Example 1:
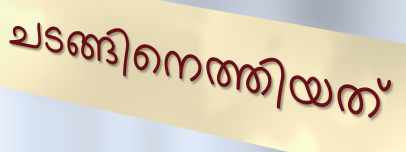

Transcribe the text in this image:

ചടങ്ങിനെത്തിയത്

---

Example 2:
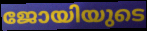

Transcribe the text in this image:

ജോയിയുടെ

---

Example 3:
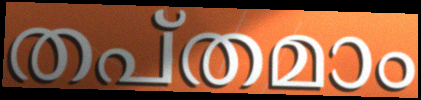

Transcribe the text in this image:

തപ്തമാം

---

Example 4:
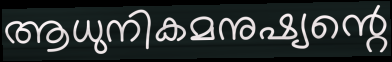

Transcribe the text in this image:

ആധുനികമനുഷ്യന്റെ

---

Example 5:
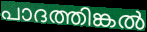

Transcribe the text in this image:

പാദത്തിങ്കൽ